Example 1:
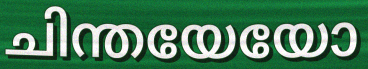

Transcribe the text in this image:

ചിന്തയേയോ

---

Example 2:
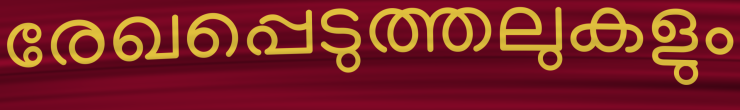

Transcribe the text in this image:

രേഖപ്പെടുത്തലുകളും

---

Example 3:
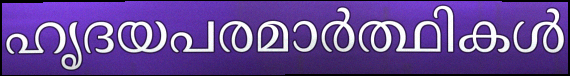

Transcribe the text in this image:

ഹൃദയപരമാർത്ഥികൾ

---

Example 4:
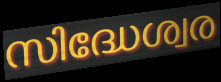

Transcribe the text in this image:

സിദ്ധേശ്വര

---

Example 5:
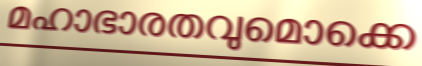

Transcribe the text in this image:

മഹാഭാരതവുമൊക്കെ